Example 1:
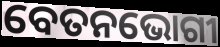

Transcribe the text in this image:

ବେତନଭୋଗୀ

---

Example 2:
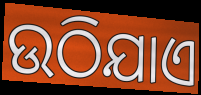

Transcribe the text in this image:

ଉଠିଯାଏ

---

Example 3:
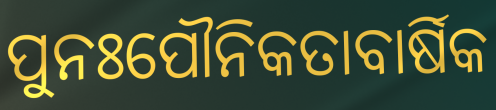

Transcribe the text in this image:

ପୁନଃପୌନିକତାବାର୍ଷିକ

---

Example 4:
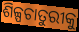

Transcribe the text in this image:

ଶିଳ୍ପଚାତୁରୀକୁ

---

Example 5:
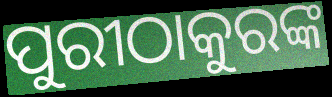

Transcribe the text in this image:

ପୁରୀଠାକୁରଙ୍କ